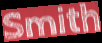
Smith